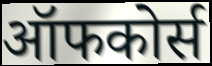
ऑफकोर्स